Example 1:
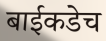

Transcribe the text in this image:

बाईकडेच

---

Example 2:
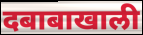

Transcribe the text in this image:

दबाबाखाली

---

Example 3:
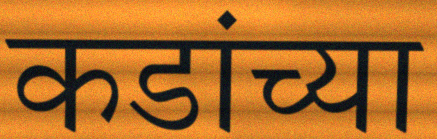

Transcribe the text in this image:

कडांच्या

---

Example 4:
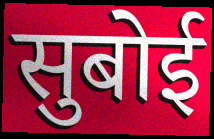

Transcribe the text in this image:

सुबोई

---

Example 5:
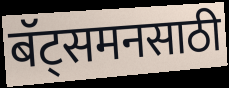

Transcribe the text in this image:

बॅट्समनसाठी